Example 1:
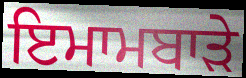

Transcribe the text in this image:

ਇਮਾਮਬਾੜੇ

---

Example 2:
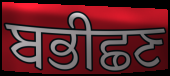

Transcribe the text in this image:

ਬਭੀਛਣ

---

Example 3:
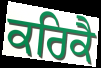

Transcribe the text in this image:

ਕਰਿਕੈ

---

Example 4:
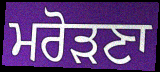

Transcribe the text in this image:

ਮਰੋੜਣਾ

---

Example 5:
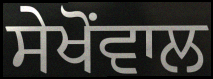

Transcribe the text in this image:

ਸੇਖੋਂਵਾਲ